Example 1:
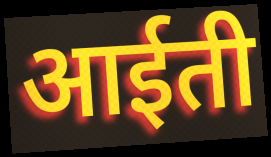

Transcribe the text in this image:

आईती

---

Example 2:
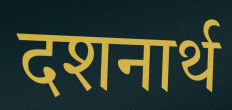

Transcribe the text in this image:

दशनार्थ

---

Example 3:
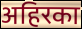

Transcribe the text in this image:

अहिरका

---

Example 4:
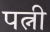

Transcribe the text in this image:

पत्नी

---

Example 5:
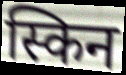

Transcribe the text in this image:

स्किन